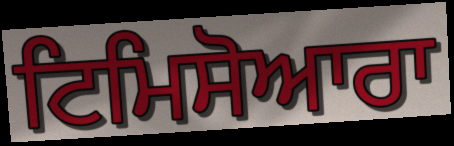
ਟਿਮਿਸੋਆਰਾ